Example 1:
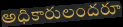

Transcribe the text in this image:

అధికారులందరూ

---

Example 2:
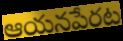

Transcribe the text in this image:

ఆయనపేరట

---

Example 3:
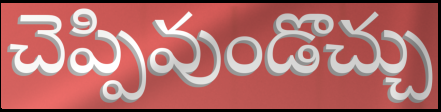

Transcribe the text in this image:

చెప్పివుండొచ్చు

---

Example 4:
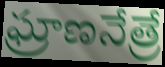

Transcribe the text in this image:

ఘ్రాణనేత్రే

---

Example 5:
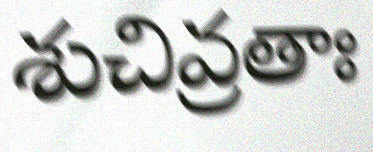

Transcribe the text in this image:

శుచివ్రతాః